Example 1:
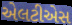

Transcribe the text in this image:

એલટીએસ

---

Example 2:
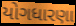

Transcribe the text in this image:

યોગધારણા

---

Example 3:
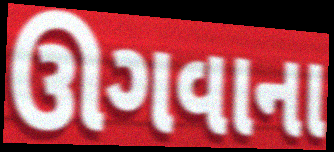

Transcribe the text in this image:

ઊગવાના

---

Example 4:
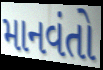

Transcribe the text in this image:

માનવંતો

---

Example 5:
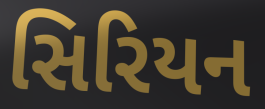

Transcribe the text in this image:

સિરિયન